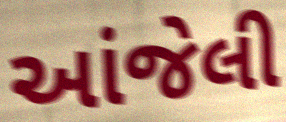
આંજેલી